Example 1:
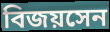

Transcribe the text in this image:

বিজয়সেন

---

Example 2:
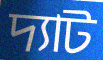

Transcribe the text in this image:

দ্যাট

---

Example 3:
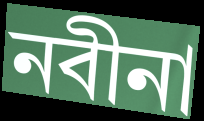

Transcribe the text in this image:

নবীনা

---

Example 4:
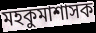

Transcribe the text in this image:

মহকুমাশাসক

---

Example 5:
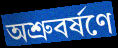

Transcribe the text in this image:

অশ্রুবর্ষণে